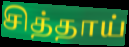
சித்தாய்